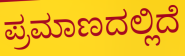
ಪ್ರಮಾಣದಲ್ಲಿದೆ